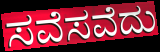
ಸವೆಸವೆದು